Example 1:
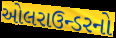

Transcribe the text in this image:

ઓલરાઉન્ડરનો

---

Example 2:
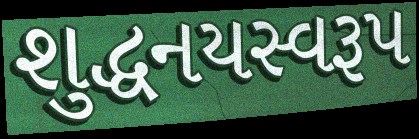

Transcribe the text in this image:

શુદ્ધનયસ્વરૂપ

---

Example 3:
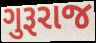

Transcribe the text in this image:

ગુરૂરાજ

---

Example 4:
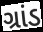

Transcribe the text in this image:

ગ્રાંડ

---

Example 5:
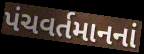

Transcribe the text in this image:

પંચવર્તમાનનાં